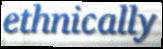
ethnically